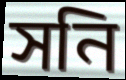
সনি